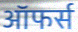
ऑफर्स